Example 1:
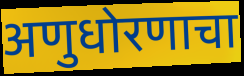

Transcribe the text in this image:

अणुधोरणाचा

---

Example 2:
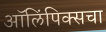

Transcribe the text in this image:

ऑलिंपिक्सचा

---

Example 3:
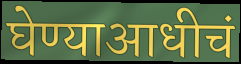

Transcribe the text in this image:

घेण्याआधीचं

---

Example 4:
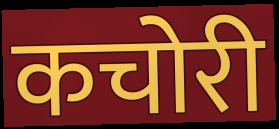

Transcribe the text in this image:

कचोरी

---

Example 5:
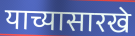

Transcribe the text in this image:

याच्यासारखे